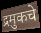
द्रमुकचे